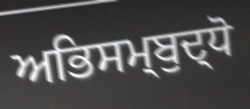
ਅਭਿਸਮ੍ਬੁਦ੍ਧੋ